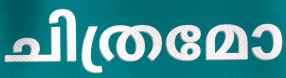
ചിത്രമോ